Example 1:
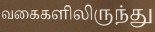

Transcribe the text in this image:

வகைகளிலிருந்து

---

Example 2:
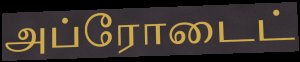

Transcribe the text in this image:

அப்ரோடைட்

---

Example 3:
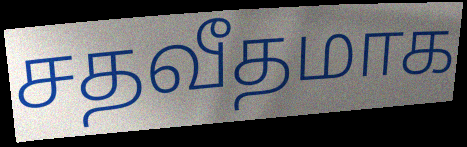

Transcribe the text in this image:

சதவீதமாக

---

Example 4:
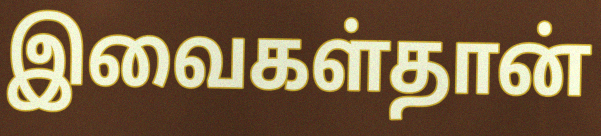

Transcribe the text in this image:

இவைகள்தான்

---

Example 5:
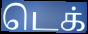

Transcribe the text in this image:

டெக்